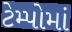
ટેમ્પોમાં